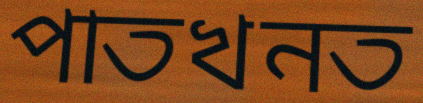
পাতখনত